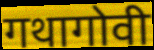
गथागोवी